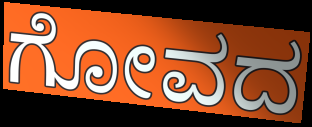
ಗೋವದ